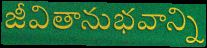
జీవితానుభవాన్ని